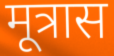
मूत्रास